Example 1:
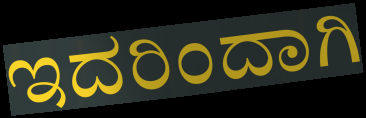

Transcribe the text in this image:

ಇದರಿಂದಾಗಿ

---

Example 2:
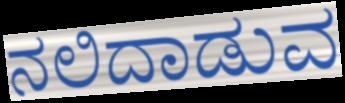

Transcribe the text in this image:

ನಲಿದಾಡುವ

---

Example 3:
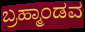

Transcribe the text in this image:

ಬ್ರಹ್ಮಾಂಡವ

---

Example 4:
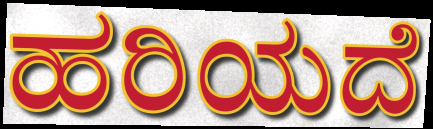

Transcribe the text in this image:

ಹರಿಯದೆ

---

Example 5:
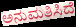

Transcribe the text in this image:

ಅನುಮತಿಸಿದೆ